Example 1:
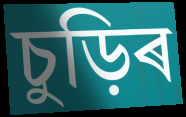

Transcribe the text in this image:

চুড়িৰ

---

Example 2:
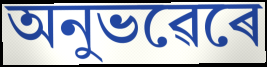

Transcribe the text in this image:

অনুভৱেৰে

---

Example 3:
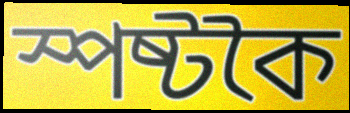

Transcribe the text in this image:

স্পষ্টকৈ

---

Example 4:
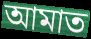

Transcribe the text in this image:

আমাত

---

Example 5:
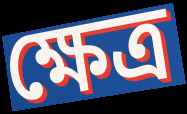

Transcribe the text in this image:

ক্ষেত্ৰ